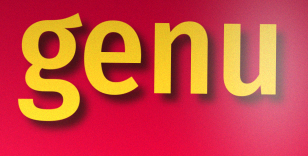
genu